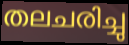
തലചരിച്ചു